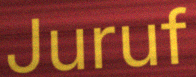
Juruf